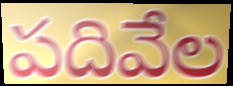
పదివేల